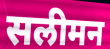
सलीमन